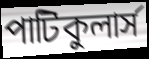
পাটিকুলার্স